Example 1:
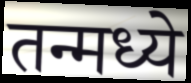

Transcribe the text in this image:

तन्मध्ये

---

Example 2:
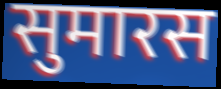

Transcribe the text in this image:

सुमारस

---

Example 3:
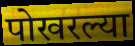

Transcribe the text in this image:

पोखरल्या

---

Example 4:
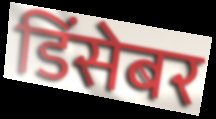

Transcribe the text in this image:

डिंसेबर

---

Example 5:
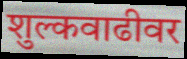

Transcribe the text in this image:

शुल्कवाढीवर